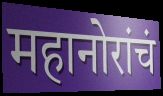
महानोरांचं